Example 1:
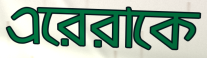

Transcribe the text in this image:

এরেরাকে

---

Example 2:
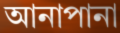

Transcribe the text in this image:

আনাপানা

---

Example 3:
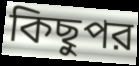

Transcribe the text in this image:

কিছুপর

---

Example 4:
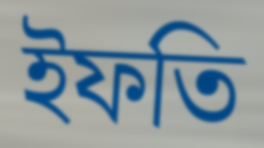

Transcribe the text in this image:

ইফতি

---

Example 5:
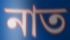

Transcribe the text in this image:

নাত